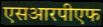
एसआरपीएफ